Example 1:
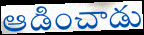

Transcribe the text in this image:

ఆడించాడు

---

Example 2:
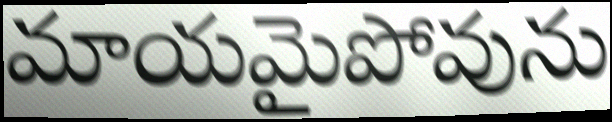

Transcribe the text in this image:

మాయమైపోవును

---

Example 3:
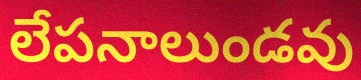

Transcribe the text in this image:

లేపనాలుండవు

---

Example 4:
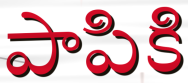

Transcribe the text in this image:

పాపికి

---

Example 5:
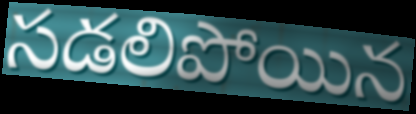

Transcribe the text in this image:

సడలిపోయిన